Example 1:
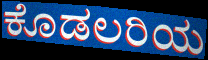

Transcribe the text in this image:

ಕೊಡಲರಿಯ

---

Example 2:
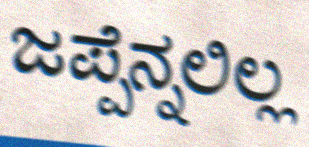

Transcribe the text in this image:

ಜಪ್ಪೆನ್ನಲಿಲ್ಲ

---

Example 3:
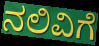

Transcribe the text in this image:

ನಲಿವಿಗೆ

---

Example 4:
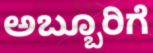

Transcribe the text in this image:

ಅಬ್ಬೂರಿಗೆ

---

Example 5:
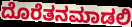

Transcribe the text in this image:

ದೊರೆತನಮಾಡಲಿ